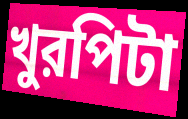
খুরপিটা